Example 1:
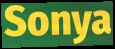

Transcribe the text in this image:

Sonya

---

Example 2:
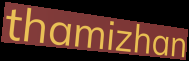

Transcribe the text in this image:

thamizhan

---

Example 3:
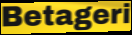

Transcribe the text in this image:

Betageri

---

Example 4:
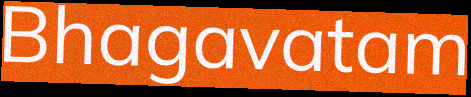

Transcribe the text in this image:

Bhagavatam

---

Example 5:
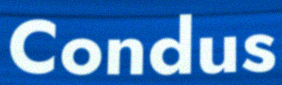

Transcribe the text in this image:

Condus